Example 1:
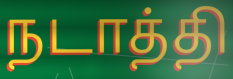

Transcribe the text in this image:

நடாத்தி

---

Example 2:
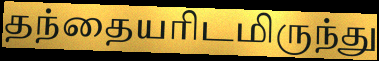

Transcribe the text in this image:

தந்தையரிடமிருந்து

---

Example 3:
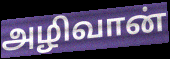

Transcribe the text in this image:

அழிவான்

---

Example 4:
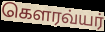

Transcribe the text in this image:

கௌரவ்யர்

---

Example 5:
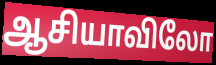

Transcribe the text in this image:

ஆசியாவிலோ